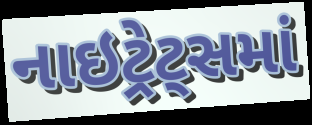
નાઇટ્રેટ્સમાં